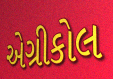
એગ્રીકોલ